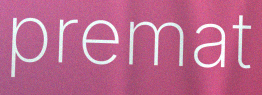
premat